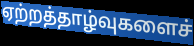
ஏற்றத்தாழ்வுகளைச்